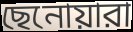
ছেনোয়ারা